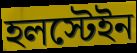
হলস্টেইন